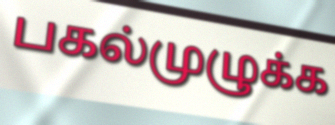
பகல்முழுக்க